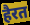
हैरत